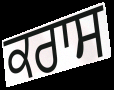
ਕਰਾਸ